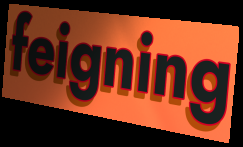
feigning